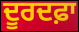
ਦੂਰਦਫ਼ਾ